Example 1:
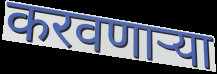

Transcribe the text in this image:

करवणाऱ्या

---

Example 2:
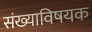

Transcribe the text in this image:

संख्याविषयक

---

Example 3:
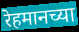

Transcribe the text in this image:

रेहमानच्या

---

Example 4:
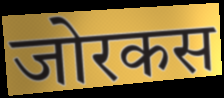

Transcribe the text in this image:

जोरकस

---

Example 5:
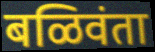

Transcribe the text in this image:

बळिवंता